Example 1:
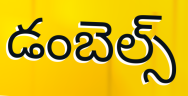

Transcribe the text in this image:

డంబెల్స్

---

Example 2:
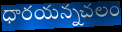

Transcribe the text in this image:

ధారయన్నచలం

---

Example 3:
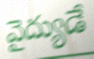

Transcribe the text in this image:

వైద్యుడే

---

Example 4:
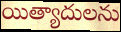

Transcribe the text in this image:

యిత్యాదులను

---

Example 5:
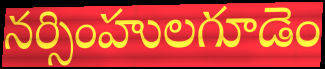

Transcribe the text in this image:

నర్సింహులగూడెం